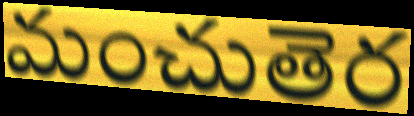
మంచుతెర